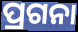
ପ୍ରଗନା